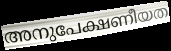
അനുപേക്ഷണീയത